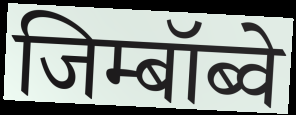
जिम्बॉब्वे